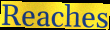
Reaches